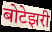
बोटेझरी